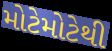
મોટેમોટેથી